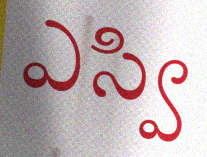
ఎస్వి